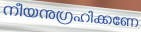
നീയനുഗ്രഹിക്കണേ